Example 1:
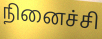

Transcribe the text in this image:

நினைச்சி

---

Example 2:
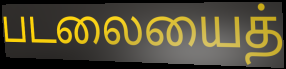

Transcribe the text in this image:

படலையைத்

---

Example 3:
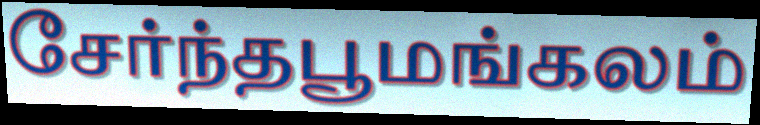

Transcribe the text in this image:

சேர்ந்தபூமங்கலம்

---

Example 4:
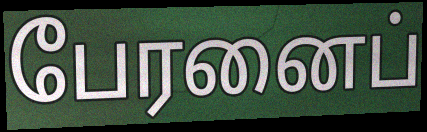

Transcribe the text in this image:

பேரனைப்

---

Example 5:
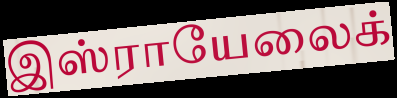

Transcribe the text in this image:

இஸ்ராயேலைக்